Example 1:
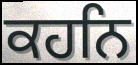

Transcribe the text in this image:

ਕਹਨਿ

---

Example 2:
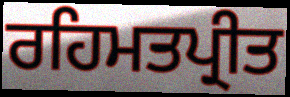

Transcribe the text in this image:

ਰਹਿਮਤਪ੍ਰੀਤ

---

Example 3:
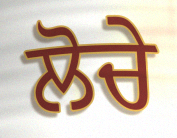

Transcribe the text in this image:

ਲੋਚੇ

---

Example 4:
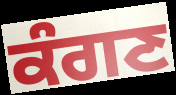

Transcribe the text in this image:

ਕੰਗਣ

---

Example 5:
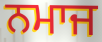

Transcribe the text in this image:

ਨਮਾਜ